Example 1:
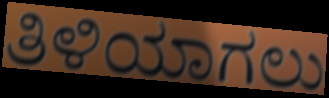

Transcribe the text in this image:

ತಿಳಿಯಾಗಲು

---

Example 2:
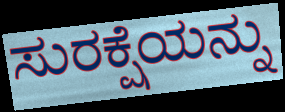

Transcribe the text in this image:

ಸುರಕ್ಷೆಯನ್ನು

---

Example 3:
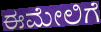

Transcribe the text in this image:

ಈಮೇಲಿಗೆ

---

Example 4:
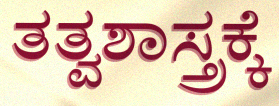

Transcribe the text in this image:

ತತ್ವಶಾಸ್ತ್ರಕ್ಕೆ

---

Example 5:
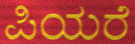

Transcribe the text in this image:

ಪಿಯರೆ